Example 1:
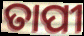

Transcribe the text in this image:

ତାପୀ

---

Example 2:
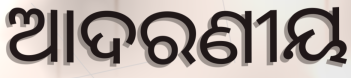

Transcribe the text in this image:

ଆଦରଣୀୟ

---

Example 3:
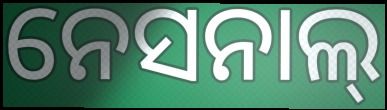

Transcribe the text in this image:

ନେସନାଲ୍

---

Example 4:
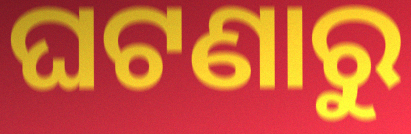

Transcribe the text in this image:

ଘଟଣାରୁ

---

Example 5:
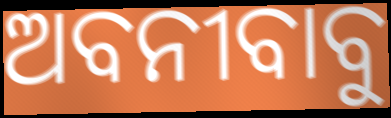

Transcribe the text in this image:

ଅବନୀବାବୁ